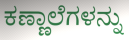
ಕಣ್ಣಾಲೆಗಳನ್ನು